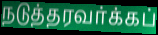
நடுத்தரவர்க்கப்